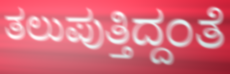
ತಲುಪುತ್ತಿದ್ದಂತೆ